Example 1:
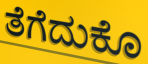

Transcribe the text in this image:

ತೆಗೆದುಕೊ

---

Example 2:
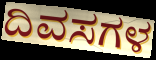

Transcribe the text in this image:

ದಿವಸಗಳ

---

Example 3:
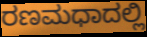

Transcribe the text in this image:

ರಣಮಧಾದಲ್ಲಿ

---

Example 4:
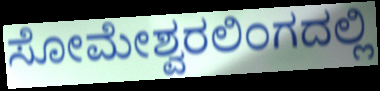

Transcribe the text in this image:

ಸೋಮೇಶ್ವರಲಿಂಗದಲ್ಲಿ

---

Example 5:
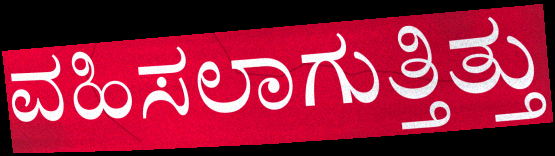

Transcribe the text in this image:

ವಹಿಸಲಾಗುತ್ತಿತ್ತು